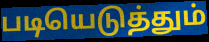
படியெடுத்தும்